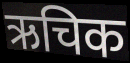
ऋचिक